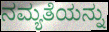
ನಮ್ಯತೆಯನ್ನು